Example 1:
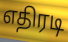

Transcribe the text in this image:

எதிரடி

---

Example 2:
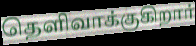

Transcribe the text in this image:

தெளிவாக்குகிறார்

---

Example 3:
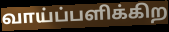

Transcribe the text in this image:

வாய்ப்பளிக்கிற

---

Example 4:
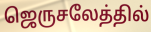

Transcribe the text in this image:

ஜெருசலேத்தில்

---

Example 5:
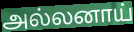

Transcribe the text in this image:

அல்லனாய்